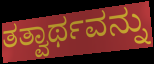
ತತ್ವಾರ್ಥವನ್ನು